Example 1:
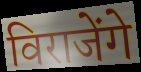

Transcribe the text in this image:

विराजेंगे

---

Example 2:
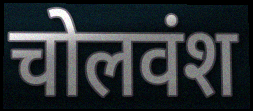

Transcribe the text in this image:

चोलवंश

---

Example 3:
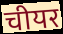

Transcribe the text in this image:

चीयर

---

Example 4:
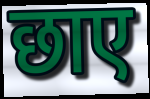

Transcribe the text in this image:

छाए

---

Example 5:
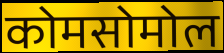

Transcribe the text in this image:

कोमसोमोल